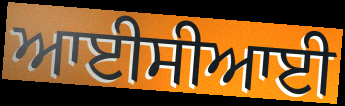
ਆਈਸੀਆਈ